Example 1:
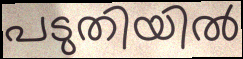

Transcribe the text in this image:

പടുതിയിൽ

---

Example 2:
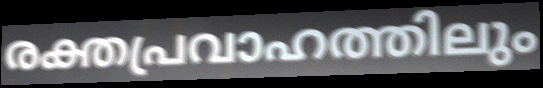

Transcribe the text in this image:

രക്തപ്രവാഹത്തിലും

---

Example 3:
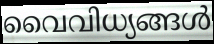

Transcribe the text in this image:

വൈവിധ്യങ്ങൾ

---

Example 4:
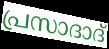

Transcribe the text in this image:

പ്രസാദാദ്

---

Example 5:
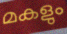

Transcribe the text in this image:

മകളും